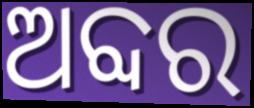
ଅବ୍ଦର